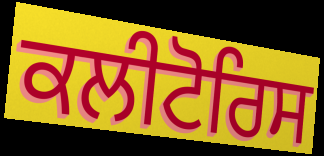
ਕਲੀਟੋਰਿਸ